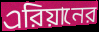
এরিয়ানের